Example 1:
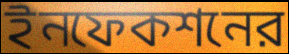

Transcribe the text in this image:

ইনফেকশনের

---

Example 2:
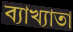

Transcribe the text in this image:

ব্যাখ্যাতা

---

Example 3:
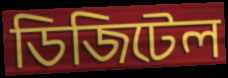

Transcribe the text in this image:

ডিজিটেল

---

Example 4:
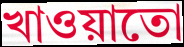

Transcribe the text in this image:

খাওয়াতো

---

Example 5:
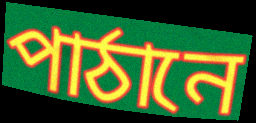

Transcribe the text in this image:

পাঠানে